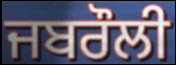
ਜਬਰੌਲੀ